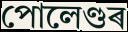
পোলেণ্ডৰ